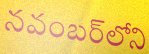
నవంబర్‌లోని